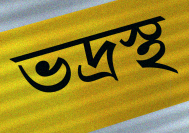
ভদ্রস্থ